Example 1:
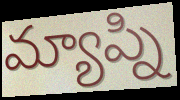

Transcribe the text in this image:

మ్యాప్ని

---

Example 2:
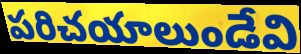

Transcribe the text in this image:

పరిచయాలుండేవి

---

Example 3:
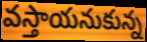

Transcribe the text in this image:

వస్తాయనుకున్న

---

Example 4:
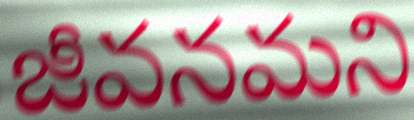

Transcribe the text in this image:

జీవనమని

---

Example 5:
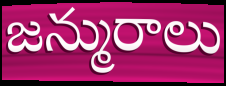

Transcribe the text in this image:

జన్మురాలు